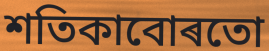
শতিকাবোৰতো